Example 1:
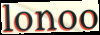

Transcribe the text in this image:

lonoo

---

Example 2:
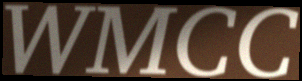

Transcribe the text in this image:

WMCC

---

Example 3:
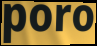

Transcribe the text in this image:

poro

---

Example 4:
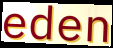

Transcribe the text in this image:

eden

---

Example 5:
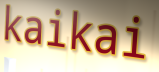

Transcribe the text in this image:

kaikai